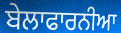
ਬੇਲਾਫਾਰਨੀਆ